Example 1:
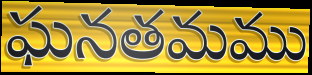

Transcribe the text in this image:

ఘనతమము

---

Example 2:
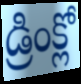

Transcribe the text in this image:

డ్రింక్లో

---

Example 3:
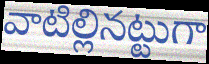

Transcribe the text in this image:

వాటిల్లినట్టుగా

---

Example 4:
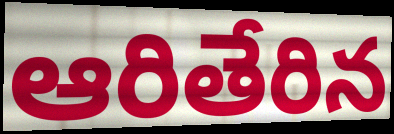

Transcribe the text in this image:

ఆరితేరిన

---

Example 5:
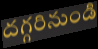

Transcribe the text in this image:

దగ్గరినుండి